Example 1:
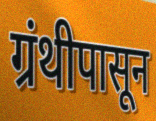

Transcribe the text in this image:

ग्रंथीपासून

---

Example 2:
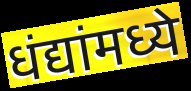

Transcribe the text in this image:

धंद्यांमध्ये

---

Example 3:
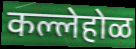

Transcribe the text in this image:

कल्लेहोळ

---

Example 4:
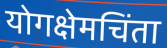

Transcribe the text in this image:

योगक्षेमचिंता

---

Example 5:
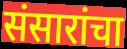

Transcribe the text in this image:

संसारांचा